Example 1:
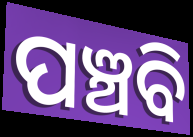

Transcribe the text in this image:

ପଞ୍ଚବି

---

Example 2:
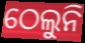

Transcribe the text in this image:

ଠେଲୁନି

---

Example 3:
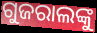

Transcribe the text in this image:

ଗୁଜରାଲଙ୍କୁ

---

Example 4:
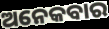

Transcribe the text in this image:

ଅନେକବାର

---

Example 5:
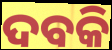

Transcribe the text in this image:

ଦବକି